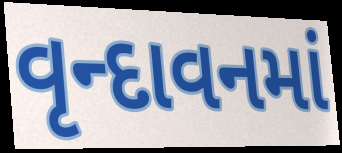
વૃન્દાવનમાં